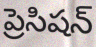
ప్రెసిషన్